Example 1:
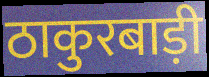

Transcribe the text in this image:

ठाकुरबाड़ी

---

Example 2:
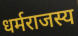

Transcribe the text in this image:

धर्मराजस्य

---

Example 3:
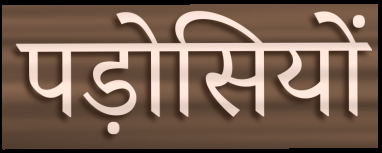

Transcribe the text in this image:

पड़ोसियों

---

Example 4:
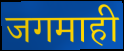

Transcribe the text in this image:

जगमाही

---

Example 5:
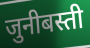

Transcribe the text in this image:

जुनीबस्ती